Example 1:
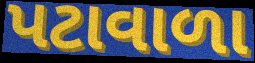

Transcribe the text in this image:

પટાવાળા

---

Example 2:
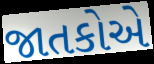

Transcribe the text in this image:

જાતકોએ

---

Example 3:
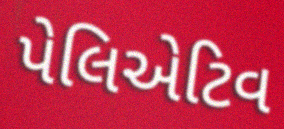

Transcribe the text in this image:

પેલિએટિવ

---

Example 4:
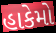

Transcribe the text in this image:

હાકેમો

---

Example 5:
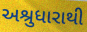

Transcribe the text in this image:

અશ્રુધારાથી